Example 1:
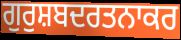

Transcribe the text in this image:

ਗੁਰੁਸ਼ਬਦਰਤਨਾਕਰ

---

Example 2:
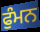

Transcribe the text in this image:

ਫੁੰਮਨ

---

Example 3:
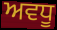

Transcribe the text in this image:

ਅਵਧੂ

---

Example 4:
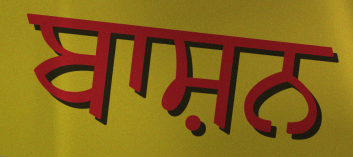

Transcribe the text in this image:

ਬਾਸ਼ਨ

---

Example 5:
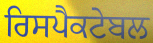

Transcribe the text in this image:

ਰਿਸਪੈਕਟੇਬਲ